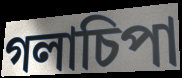
গলাচিপা